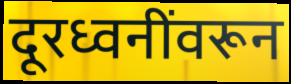
दूरध्वनींवरून